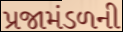
પ્રજામંડળની